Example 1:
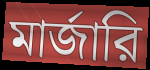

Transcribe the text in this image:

মার্জারি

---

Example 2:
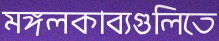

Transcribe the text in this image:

মঙ্গলকাব্যগুলিতে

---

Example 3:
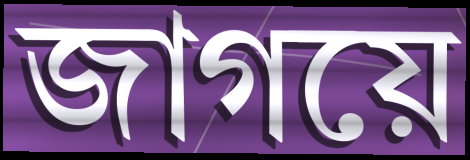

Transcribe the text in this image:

জাগয়ে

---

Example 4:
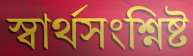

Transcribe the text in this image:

স্বার্থসংশ্নিষ্ট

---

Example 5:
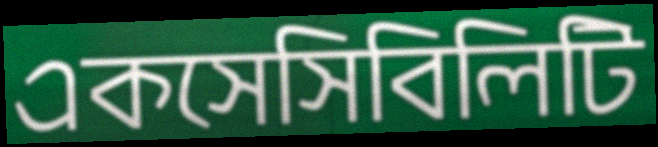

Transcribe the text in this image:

একসেসিবিলিটি